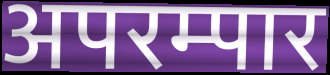
अपरम्पार